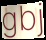
gbj